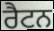
ਰੈਟਨ